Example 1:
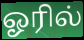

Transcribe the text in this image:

ஓரில்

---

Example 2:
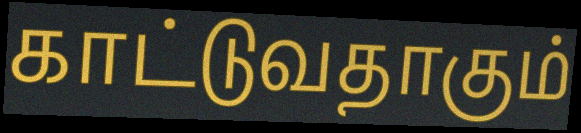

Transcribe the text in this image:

காட்டுவதாகும்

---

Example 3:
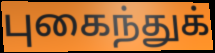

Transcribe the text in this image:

புகைந்துக்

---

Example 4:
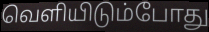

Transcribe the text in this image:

வெளியிடும்போது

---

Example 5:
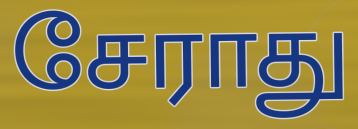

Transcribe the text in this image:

சேராது